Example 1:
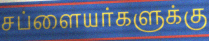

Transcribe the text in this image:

சப்ளையர்களுக்கு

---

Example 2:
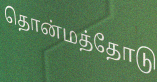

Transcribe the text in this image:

தொன்மத்தோடு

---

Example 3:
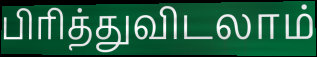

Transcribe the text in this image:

பிரித்துவிடலாம்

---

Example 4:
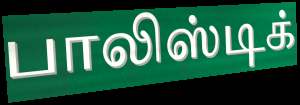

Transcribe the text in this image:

பாலிஸ்டிக்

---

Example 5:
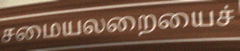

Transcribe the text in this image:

சமையலறையைச்